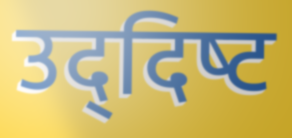
उद्‌दिष्‍ट